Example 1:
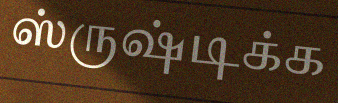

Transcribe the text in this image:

ஸ்ருஷ்டிக்க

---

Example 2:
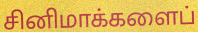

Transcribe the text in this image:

சினிமாக்களைப்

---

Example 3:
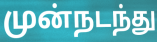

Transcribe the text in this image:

முன்நடந்து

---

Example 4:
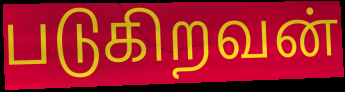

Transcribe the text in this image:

படுகிறவன்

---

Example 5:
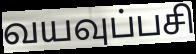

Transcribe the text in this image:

வயவுப்பசி